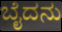
ಬೈದನು